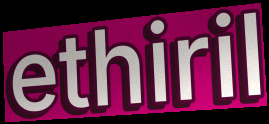
ethiril